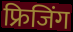
फ्रिजिंग